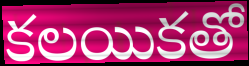
కలయికతో